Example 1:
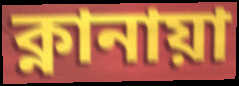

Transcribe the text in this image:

ক্নানায়া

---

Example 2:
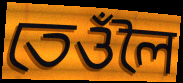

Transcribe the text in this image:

তেওঁলৈ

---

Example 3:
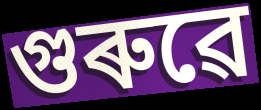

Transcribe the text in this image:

গুৰুৱে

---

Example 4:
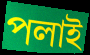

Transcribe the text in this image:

পলাই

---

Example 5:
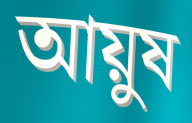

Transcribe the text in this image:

আয়ুষ